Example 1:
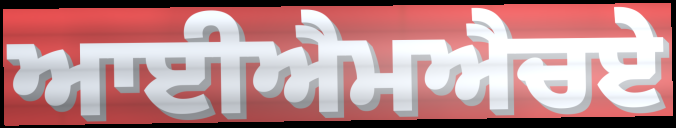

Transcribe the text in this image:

ਆਈਐਮਐਚਏ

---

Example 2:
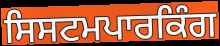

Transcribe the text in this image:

ਸਿਸਟਮਪਾਰਕਿੰਗ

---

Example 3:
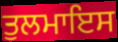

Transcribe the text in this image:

ਤੁਲਮਾਇਸ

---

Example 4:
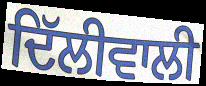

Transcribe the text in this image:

ਦਿੱਲੀਵਾਲੀ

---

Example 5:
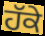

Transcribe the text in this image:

ਹੱਕੇ